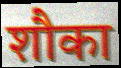
शौका